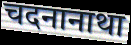
चदनानाथा